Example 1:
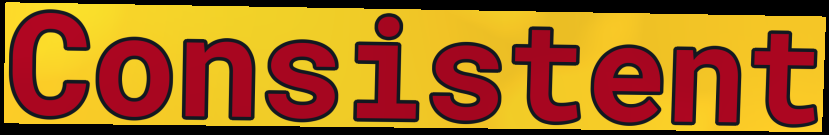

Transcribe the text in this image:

Consistent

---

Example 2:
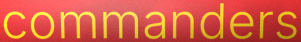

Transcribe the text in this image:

commanders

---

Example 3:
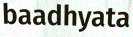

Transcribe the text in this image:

baadhyata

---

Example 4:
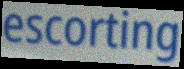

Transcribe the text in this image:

escorting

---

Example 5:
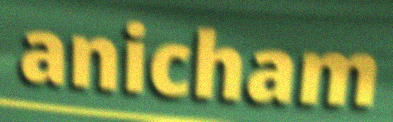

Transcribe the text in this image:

anicham